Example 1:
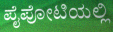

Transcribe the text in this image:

ಪೈಪೋಟಿಯಲ್ಲಿ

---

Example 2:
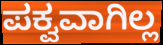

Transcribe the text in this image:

ಪಕ್ವವಾಗಿಲ್ಲ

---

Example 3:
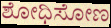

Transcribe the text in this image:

ಶೋಧಿಸೋಣ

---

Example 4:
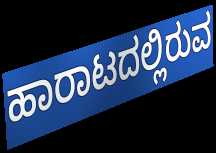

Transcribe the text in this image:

ಹಾರಾಟದಲ್ಲಿರುವ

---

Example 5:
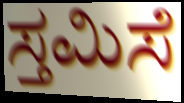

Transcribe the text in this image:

ಸ್ತಮಿಸೆ